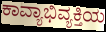
ಕಾವ್ಯಾಭಿವ್ಯಕ್ತಿಯ